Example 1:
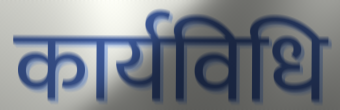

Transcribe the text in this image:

कार्यविधि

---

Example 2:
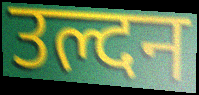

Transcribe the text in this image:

उल्दन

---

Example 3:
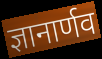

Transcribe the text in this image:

ज्ञानार्णव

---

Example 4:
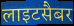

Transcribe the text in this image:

लाइटसैबर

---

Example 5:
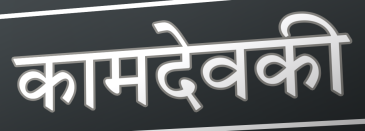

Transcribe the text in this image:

कामदेवकी